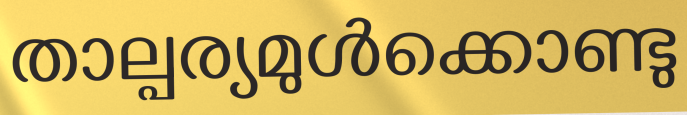
താല്പര്യമുൾക്കൊണ്ടു